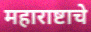
महाराष्टाचे